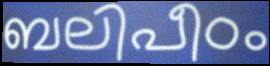
ബലിപീഠം